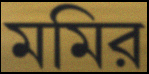
মমির